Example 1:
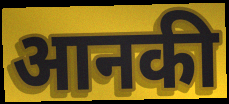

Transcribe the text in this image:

आनकी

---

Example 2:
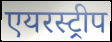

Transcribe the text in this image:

एयरस्ट्रीप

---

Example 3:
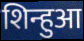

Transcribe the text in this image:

शिन्‍हुआ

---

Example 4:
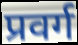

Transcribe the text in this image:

प्रवर्ग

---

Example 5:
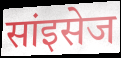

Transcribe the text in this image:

सांइसेज